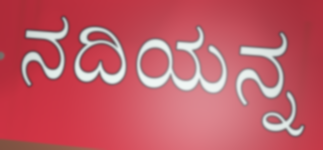
ನದಿಯನ್ನ